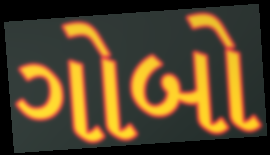
ગોબો